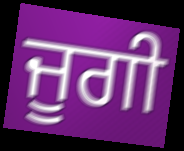
ਜੂਗੀ